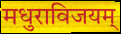
मधुराविजयम्